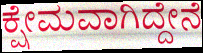
ಕ್ಷೇಮವಾಗಿದ್ದೇನೆ